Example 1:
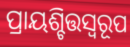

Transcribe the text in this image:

ପ୍ରାୟଶ୍ଚିତ୍ତସ୍ୱରୂପ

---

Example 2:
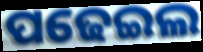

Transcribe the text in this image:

ପଢେଇଲ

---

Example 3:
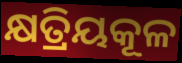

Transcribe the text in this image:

କ୍ଷତ୍ରିୟକୂଳ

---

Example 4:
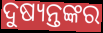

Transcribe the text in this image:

ଦୁଷ୍ୟନ୍ତଙ୍କର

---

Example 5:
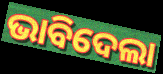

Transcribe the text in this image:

ଭାବିଦେଲା